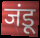
जंडू